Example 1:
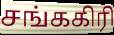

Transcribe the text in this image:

சங்ககிரி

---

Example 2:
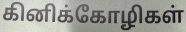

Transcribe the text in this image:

கினிக்கோழிகள்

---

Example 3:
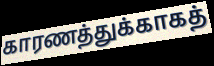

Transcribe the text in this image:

காரணத்துக்காகத்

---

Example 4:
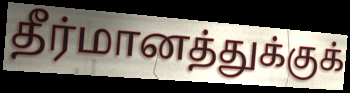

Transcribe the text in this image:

தீர்மானத்துக்குக்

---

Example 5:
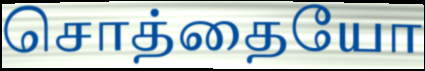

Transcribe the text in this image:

சொத்தையோ